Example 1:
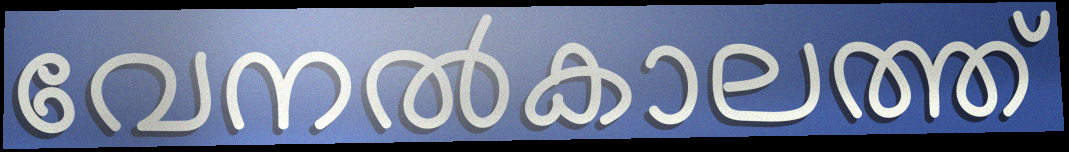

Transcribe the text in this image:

വേനൽകാലത്ത്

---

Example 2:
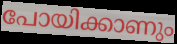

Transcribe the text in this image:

പോയിക്കാണും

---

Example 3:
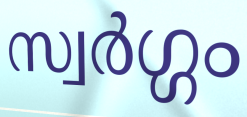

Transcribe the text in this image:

സ്വർഗ്ഗം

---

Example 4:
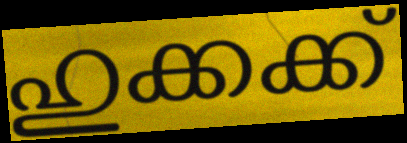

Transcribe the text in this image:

ഹുക്കക്ക്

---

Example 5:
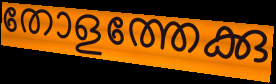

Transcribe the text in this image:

തോളത്തേക്കു